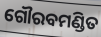
ଗୌରବମଣ୍ଡିତ